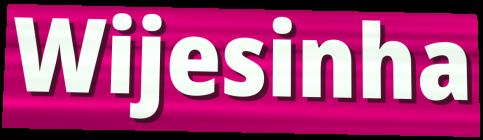
Wijesinha